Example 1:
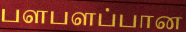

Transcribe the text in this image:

பளபளப்பான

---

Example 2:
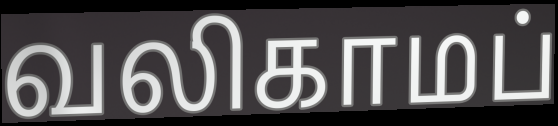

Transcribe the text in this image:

வலிகாமப்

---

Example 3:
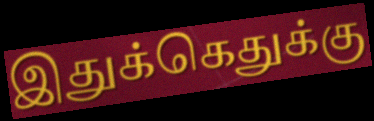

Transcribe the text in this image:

இதுக்கெதுக்கு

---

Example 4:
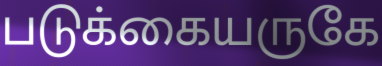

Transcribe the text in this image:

படுக்கையருகே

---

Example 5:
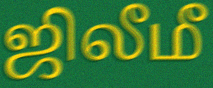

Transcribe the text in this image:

ஜிலீமீ